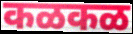
कळकळ